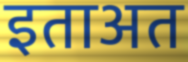
इताअत